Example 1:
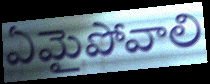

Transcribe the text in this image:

ఏమైపోవాలి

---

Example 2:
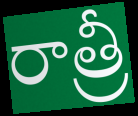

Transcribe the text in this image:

రాత్రీ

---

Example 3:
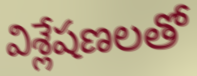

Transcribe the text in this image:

విశ్లేషణలతో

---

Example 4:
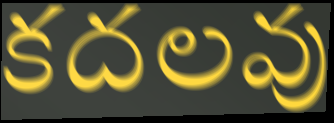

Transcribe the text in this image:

కదలవు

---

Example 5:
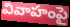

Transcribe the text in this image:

వివాహంపై